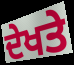
ਦੇਖਤੇ